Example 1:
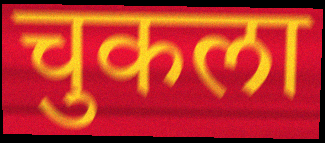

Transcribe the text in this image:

चुकला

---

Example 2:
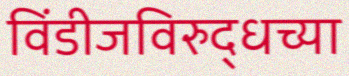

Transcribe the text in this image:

विंडीजविरुद्धच्या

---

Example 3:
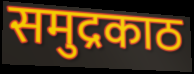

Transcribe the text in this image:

समुद्रकाठ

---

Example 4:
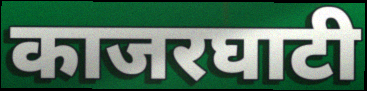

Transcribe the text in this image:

काजरघाटी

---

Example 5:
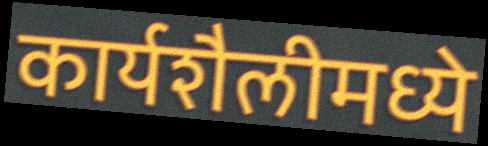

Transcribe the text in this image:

कार्यशैलीमध्ये